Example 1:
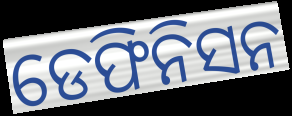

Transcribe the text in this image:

ଡେଫିନିସନ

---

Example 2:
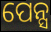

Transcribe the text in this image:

ପେନ୍ସ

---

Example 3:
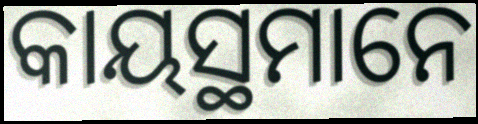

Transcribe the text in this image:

କାୟସ୍ଥମାନେ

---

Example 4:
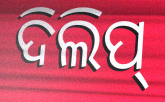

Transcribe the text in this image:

ଦିଲିପ୍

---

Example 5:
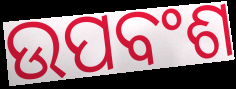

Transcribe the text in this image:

ଉପବଂଶ